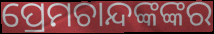
ପ୍ରେମଚାନ୍ଦଙ୍କଙ୍କର